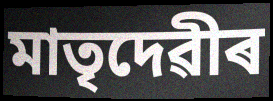
মাতৃদেৱীৰ